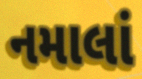
નમાલાં